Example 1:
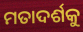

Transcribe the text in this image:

ମତାଦର୍ଶକୁ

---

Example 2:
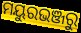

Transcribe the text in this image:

ମୟୁରଭଞ୍ଜରୁ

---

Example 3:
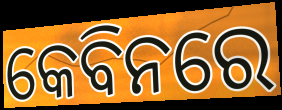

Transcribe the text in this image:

କେବିନରେ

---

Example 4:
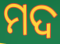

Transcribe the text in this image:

ମଦ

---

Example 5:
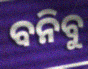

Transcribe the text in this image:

ବନିବୁ